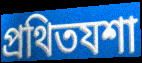
প্ৰথিতযশা